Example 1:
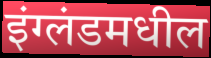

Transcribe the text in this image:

इंग्‍लंडमधील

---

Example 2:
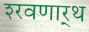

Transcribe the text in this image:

श्रवणार्थ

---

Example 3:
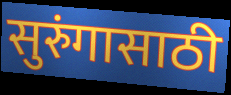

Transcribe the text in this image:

सुरुंगासाठी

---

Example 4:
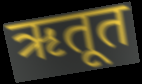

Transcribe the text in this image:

ऋतूत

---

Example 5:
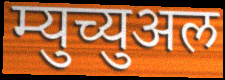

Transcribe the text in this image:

म्युच्युअल